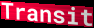
Transit